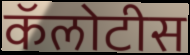
कॅलोटीस